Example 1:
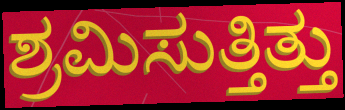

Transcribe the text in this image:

ಶ್ರಮಿಸುತ್ತಿತ್ತು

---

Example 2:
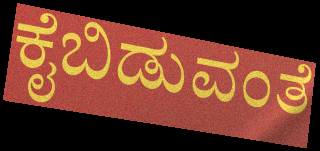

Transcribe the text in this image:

ಕೈಬಿಡುವಂತೆ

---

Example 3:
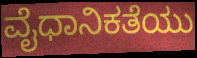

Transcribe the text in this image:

ವೈಧಾನಿಕತೆಯು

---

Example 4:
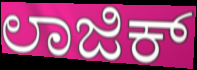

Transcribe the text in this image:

ಲಾಜಿಕ್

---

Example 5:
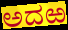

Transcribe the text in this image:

ಅದಱ